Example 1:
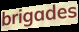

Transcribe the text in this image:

brigades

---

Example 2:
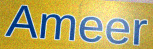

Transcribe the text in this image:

Ameer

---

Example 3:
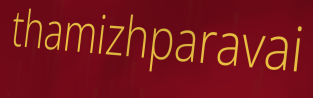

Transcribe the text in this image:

thamizhparavai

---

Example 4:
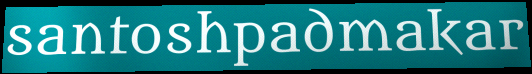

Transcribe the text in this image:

santoshpadmakar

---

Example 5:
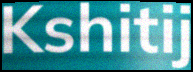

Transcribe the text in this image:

Kshitij